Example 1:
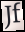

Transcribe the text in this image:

Jf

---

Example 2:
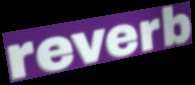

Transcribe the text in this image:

reverb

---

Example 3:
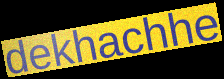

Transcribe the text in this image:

dekhachhe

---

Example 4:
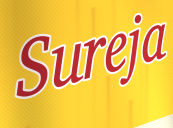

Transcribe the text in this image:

Sureja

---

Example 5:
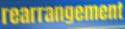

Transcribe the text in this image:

rearrangement